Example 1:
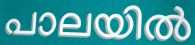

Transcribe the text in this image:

പാലയിൽ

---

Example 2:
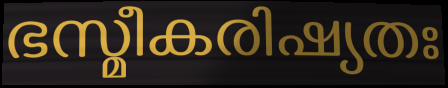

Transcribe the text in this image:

ഭസ്മീകരിഷ്യതഃ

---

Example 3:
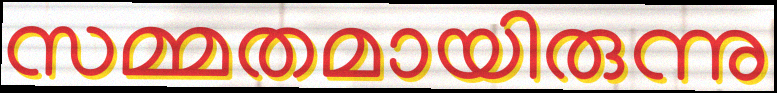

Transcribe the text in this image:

സമ്മതമായിരുന്നു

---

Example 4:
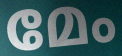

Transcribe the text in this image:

മേം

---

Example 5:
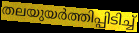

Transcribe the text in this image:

തലയുയർത്തിപ്പിടിച്ച്